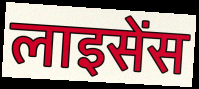
लाइसेंस